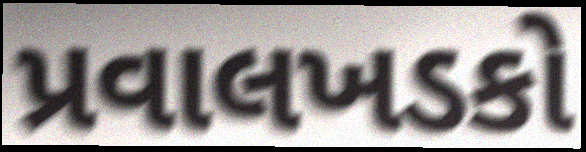
પ્રવાલખડકો